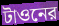
টাওনের